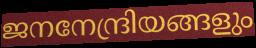
ജനനേന്ദ്രിയങ്ങളും